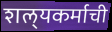
शल्यकर्माची